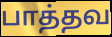
பாத்தவ